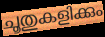
ചൂതുകളിക്കും